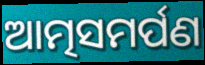
ଆତ୍ମସମର୍ପଣ